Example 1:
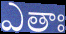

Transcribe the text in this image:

ఎతాః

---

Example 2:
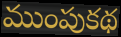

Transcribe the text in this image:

ముంపుకథ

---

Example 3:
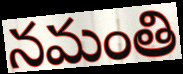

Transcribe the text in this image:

నమంతి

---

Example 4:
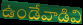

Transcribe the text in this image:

ఉండేవాడివి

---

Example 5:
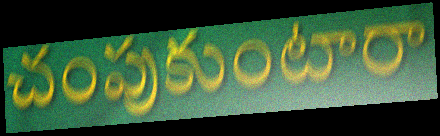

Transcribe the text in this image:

చంపుకుంటారా